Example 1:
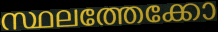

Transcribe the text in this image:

സ്ഥലത്തേക്കോ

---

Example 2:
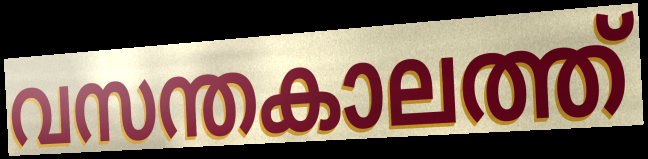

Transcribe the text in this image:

വസന്തകാലത്ത്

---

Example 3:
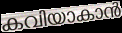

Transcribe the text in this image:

കവിയാകാൻ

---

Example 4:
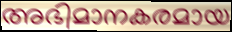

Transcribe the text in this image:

അഭിമാനകരമായ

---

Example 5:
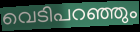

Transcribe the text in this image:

വെടിപറഞ്ഞും